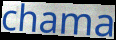
chama